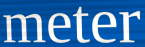
meter